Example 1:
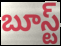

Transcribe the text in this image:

బూస్ట్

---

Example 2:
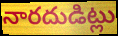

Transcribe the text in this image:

నారదుడిట్లు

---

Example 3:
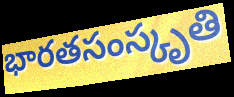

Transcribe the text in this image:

భారతసంస్కృతి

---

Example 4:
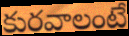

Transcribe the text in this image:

కురవాలంటే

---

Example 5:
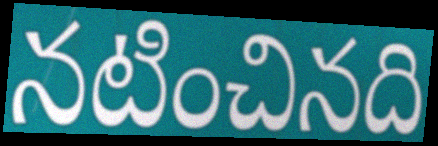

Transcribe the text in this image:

నటించినది